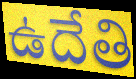
ఉదేతి